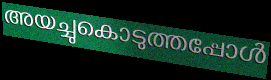
അയച്ചുകൊടുത്തപ്പോൾ